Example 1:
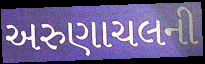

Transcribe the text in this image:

અરુણાચલની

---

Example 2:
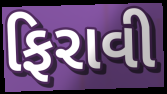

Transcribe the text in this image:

ફિરાવી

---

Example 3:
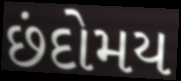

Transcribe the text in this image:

છંદોમય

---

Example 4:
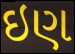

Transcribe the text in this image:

ઇણ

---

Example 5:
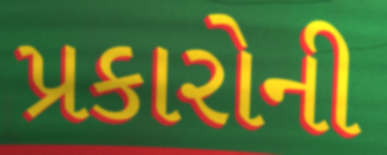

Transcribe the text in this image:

પ્રકારોની